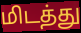
மிடத்து